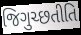
જિગુચ્છતીતિ